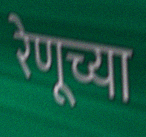
रेणूच्या